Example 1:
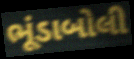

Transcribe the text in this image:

ભૂંડાબોલી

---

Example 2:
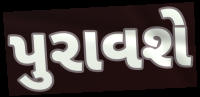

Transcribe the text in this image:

પુરાવશે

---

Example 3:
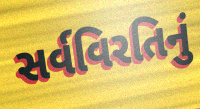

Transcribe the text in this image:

સર્વવિરતિનું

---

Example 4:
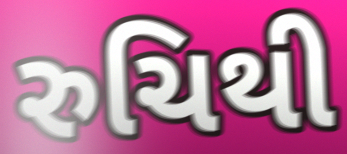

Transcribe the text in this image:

રુચિથી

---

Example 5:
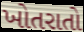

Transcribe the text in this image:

ખોતરાતો